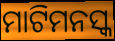
ମାଟିମନସ୍କ